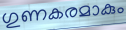
ഗുണകരമാകും